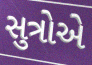
સુત્રોએ